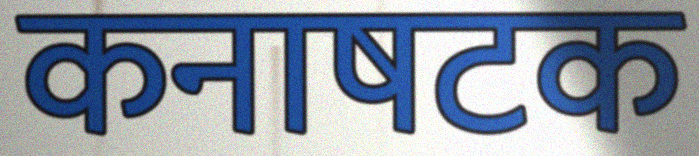
कनाषटक